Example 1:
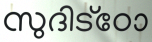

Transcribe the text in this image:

സുദിട്ഠോ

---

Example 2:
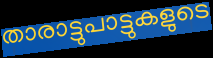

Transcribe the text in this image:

താരാട്ടുപാട്ടുകളുടെ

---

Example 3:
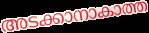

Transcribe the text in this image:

അടക്കാനാകാത്ത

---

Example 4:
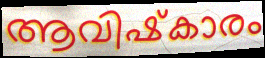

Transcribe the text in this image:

ആവിഷ്‌കാരം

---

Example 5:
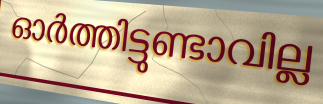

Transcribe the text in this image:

ഓർത്തിട്ടുണ്ടാവില്ല